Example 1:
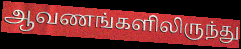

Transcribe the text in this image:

ஆவணங்களிலிருந்து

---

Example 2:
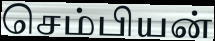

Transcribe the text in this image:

செம்பியன்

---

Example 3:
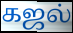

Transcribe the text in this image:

கஜல்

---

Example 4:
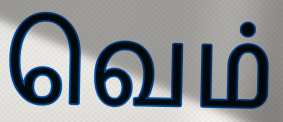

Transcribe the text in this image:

வெம்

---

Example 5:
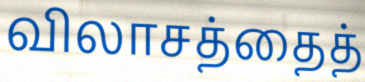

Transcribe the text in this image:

விலாசத்தைத்